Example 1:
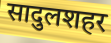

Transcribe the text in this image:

सादुलशहर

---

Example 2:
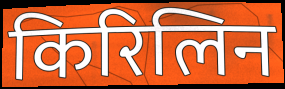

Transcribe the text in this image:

किरिलिन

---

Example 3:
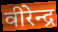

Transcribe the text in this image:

वीरेन्‍द्र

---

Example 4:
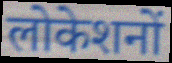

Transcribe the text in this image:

लोकेशनों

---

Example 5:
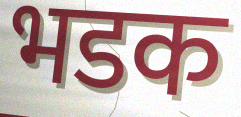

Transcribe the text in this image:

भडक